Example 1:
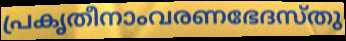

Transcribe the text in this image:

പ്രകൃതീനാംവരണഭേദസ്തു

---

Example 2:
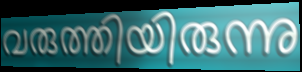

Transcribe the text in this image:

വരുത്തിയിരുന്നു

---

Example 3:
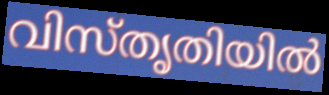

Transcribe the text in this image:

വിസ്തൃതിയിൽ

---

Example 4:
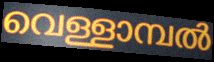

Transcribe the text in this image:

വെള്ളാമ്പൽ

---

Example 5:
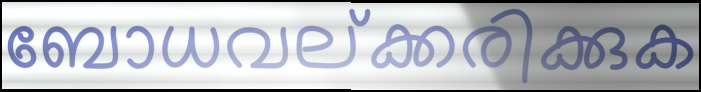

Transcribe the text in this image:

ബോധവല്ക്കരിക്കുക